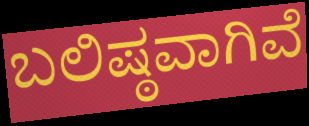
ಬಲಿಷ್ಠವಾಗಿವೆ